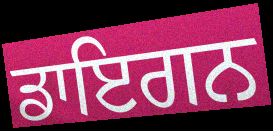
ਡਾਇਗਨ